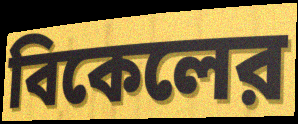
বিকেলের